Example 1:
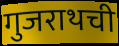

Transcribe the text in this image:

गुजराथची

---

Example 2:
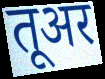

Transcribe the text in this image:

तूअर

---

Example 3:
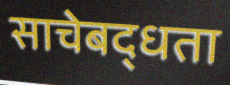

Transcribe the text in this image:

साचेबद्धता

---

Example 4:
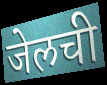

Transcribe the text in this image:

जेलची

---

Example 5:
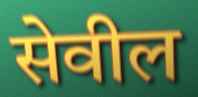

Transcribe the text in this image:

सेवील